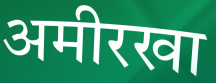
अमीरखा